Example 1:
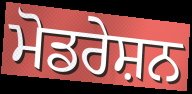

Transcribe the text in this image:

ਮੋਡਰੇਸ਼ਨ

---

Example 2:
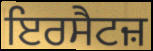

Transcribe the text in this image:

ਇਰਸੈਟਜ਼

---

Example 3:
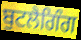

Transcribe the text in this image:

ਬੁਟਲੈਗਿੰਗ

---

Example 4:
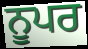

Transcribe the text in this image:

ਨੂਪਰ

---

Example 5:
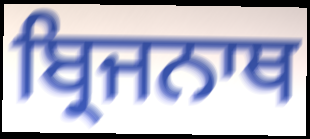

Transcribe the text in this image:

ਬ੍ਰਿਜਨਾਥ